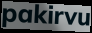
pakirvu